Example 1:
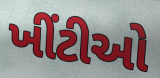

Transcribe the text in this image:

ખીંટીઓ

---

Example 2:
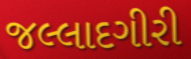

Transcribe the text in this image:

જલ્લાદગીરી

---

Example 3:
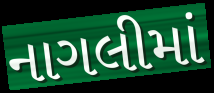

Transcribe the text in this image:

નાગલીમાં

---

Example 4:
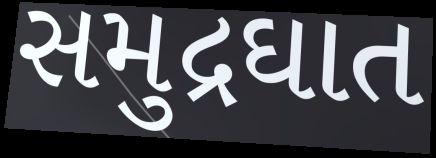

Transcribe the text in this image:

સમુદ્રઘાત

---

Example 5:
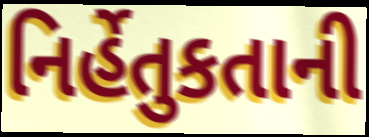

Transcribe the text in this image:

નિર્હેતુકતાની